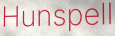
Hunspell